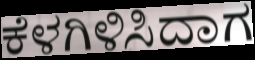
ಕೆಳಗಿಳಿಸಿದಾಗ